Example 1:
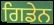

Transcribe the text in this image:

ਗਿਡੇਨ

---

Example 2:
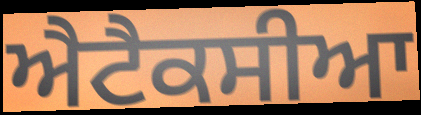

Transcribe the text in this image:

ਐਟੈਕਸੀਆ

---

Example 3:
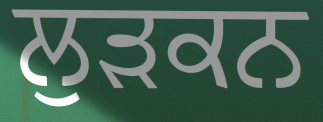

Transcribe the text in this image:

ਲੁੜਕਨ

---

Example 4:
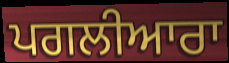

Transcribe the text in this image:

ਪਗਲੀਆਰਾ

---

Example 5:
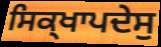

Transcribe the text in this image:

ਸਿਕ੍ਖਾਪਦੇਸੁ